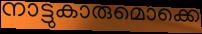
നാട്ടുകാരുമൊക്കെ